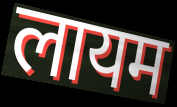
लायम